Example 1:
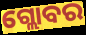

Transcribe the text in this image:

ଗ୍ଲୋବର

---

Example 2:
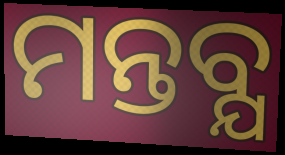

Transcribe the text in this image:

ମନ୍ତବ୍ଯ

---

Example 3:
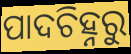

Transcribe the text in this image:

ପାଦଚିହ୍ନରୁ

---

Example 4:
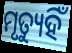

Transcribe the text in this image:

ମୃତ୍ୟୁହିଁ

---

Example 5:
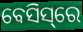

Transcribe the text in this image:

ବେସିସ୍‌ରେ